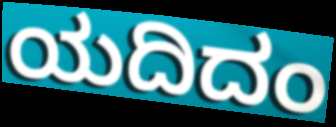
ಯದಿದಂ